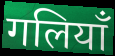
गलियाँ